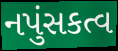
નપુંસકત્વ